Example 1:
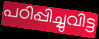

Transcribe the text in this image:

പഠിപ്പിച്ചുവിട്ട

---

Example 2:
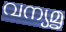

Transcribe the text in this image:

വന്യമൃ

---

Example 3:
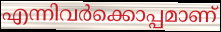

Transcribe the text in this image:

എന്നിവർക്കൊപ്പമാണ്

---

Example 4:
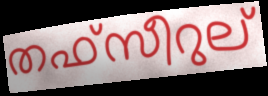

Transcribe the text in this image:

തഫ്സീറുല്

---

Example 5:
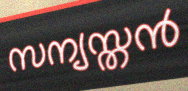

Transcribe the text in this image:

സന്യസ്തൻ